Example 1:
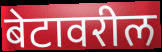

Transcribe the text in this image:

बेटावरील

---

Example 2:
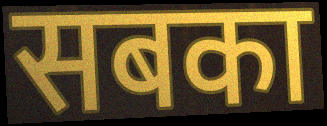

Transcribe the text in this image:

सबका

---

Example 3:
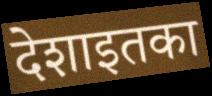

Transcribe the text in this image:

देशाइतका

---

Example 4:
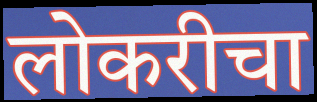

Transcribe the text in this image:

लोकरीचा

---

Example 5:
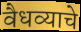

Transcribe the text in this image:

वैधव्याचे